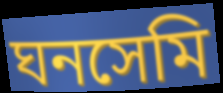
ঘনসেমি